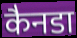
कैनडा